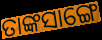
ତାଙ୍କସାଙ୍ଗେ